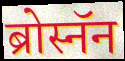
ब्रोस्नॅन